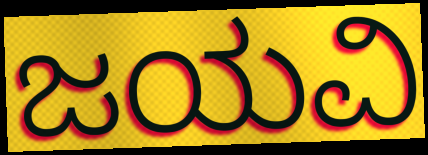
ಜಯವಿ